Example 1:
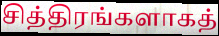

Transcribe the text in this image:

சித்திரங்களாகத்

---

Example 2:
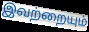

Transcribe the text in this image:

இவற்றையும்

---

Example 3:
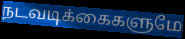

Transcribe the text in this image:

நடவடிக்கைகளுமே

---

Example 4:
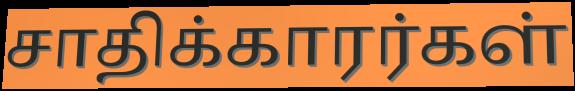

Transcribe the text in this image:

சாதிக்காரர்கள்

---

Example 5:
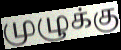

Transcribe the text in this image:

முழுக்கு